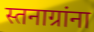
स्तनाग्रांना